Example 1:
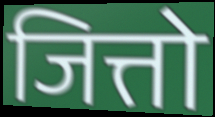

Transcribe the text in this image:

जित्तो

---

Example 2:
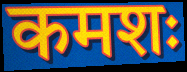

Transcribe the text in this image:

कमशः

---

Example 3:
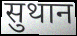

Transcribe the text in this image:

सुथान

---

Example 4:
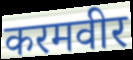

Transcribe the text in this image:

करमवीर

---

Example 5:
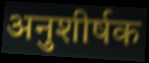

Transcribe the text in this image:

अनुशीर्षक